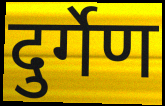
दुर्गेण